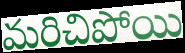
మరిచిపోయి